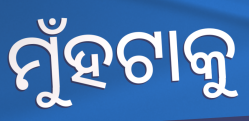
ମୁଁହଟାକୁ